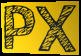
PX